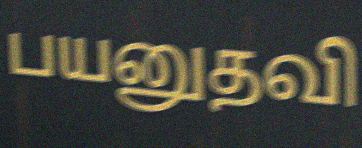
பயனுதவி